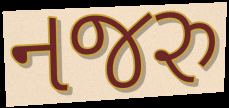
નજરુ